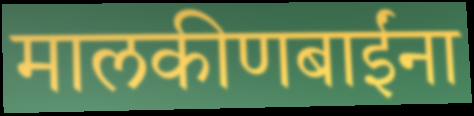
मालकीणबाईंना